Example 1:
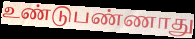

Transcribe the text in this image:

உண்டுபண்ணாது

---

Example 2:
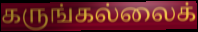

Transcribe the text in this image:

கருங்கல்லைக்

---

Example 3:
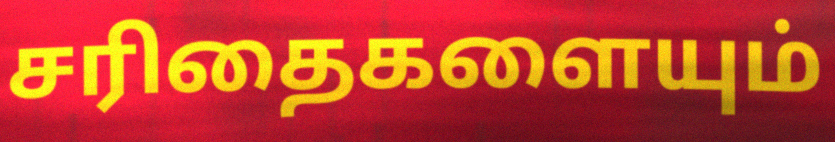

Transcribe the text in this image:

சரிதைகளையும்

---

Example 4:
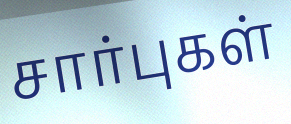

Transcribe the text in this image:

சார்புகள்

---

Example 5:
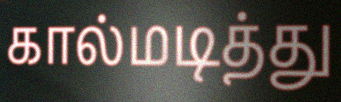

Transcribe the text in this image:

கால்மடித்து